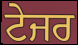
ਟੇਜਰ